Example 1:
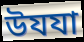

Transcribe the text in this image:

উযযা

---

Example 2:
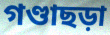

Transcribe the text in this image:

গণ্ডাছড়া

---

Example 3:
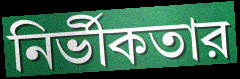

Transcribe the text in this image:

নির্ভীকতার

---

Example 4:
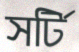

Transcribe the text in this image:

সর্টি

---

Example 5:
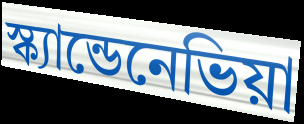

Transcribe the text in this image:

স্ক্যান্ডেনেভিয়া